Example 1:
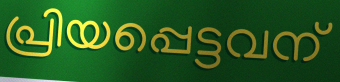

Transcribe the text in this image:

പ്രിയപ്പെട്ടവന്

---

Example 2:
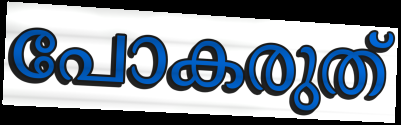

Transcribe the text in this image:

പോകരുത്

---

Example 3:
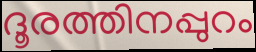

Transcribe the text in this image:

ദൂരത്തിനപ്പുറം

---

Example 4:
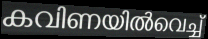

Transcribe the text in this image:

കവിണയിൽവെച്ച്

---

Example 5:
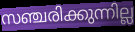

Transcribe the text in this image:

സഞ്ചരിക്കുന്നില്ല